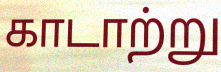
காடாற்று